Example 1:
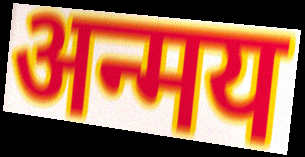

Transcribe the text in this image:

अन्मय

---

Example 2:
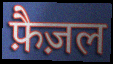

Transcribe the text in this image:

फ़ैज़ल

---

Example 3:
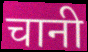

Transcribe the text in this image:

चानी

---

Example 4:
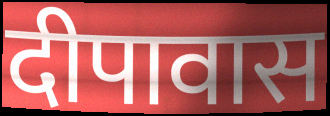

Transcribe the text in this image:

दीपावास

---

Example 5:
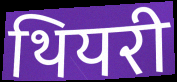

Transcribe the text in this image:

थियरी